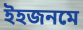
ইহজনমে